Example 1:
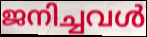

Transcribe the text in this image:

ജനിച്ചവൾ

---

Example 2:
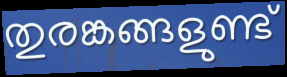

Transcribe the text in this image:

തുരങ്കങ്ങളുണ്ട്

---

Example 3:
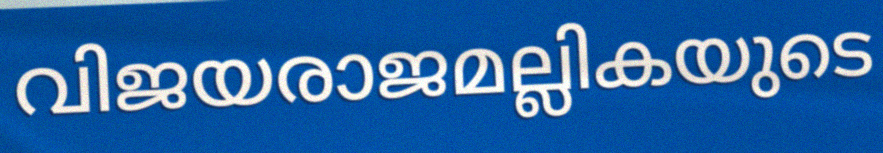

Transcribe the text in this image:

വിജയരാജമല്ലികയുടെ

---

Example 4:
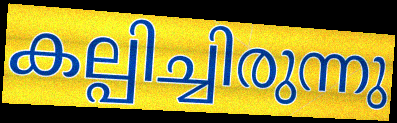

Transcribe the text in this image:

കല്പിച്ചിരുന്നു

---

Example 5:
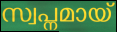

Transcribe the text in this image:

സ്വപ്നമായ്